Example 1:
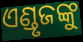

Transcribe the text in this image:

ଏଣ୍ଡୃଜଙ୍କୁ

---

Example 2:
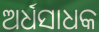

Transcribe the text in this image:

ଅର୍ଧସାଧକ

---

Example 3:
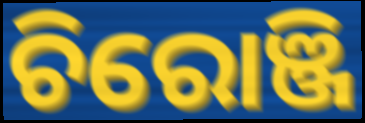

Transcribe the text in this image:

ଚିରୋଞ୍ଜି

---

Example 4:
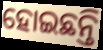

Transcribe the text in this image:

ହୋଇଛନ୍ତି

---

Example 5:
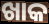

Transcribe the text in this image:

ଖାକ